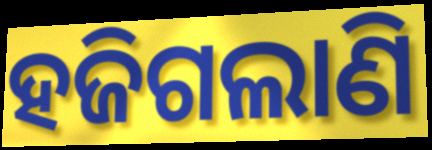
ହଜିଗଲାଣି